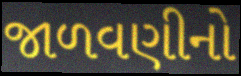
જાળવણીનો